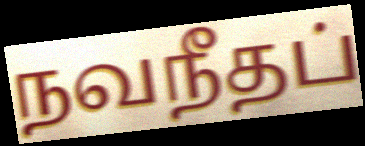
நவநீதப்